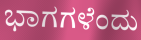
ಭಾಗಗಳೆಂದು